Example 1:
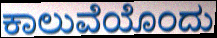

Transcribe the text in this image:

ಕಾಲುವೆಯೊಂದು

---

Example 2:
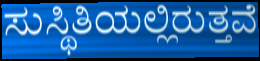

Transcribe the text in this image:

ಸುಸ್ಥಿತಿಯಲ್ಲಿರುತ್ತವೆ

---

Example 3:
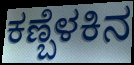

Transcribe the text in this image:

ಕಣ್ಬೆಳಕಿನ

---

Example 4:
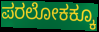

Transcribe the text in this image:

ಪರಲೋಕಕ್ಕೂ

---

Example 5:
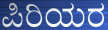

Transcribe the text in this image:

ಪಿರಿಯರ